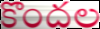
కొందల